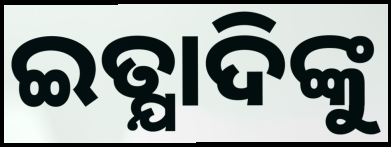
ଇତ୍ଯାଦିଙ୍କୁ